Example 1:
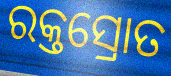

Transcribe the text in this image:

ରକ୍ତସ୍ରୋତ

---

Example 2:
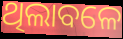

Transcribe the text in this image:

ଥିଲାବଳେ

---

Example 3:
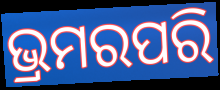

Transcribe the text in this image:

ଭ୍ରମରପରି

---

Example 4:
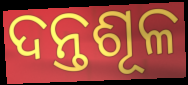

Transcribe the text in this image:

ଦନ୍ତଶୂଳ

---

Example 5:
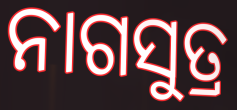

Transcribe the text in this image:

ନାଗସୁତ୍ର